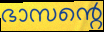
ഭാസന്റെ